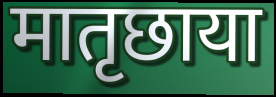
मातृछाया